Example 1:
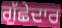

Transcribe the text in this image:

ਗੁੱਛੇਦਾਰ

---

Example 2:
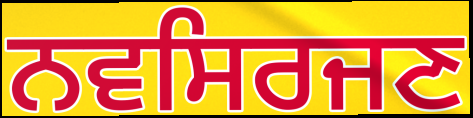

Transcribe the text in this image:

ਨਵਸਿਰਜਣ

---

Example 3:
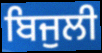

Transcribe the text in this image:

ਬਿਜੁਲੀ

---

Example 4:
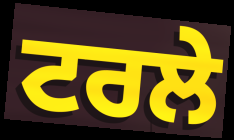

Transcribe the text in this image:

ਟਰਲੇ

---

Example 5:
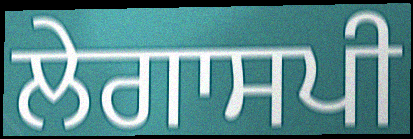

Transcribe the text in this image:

ਲੇਗਾਸਪੀ